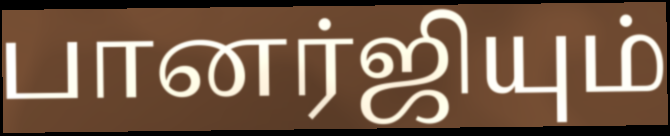
பானர்ஜியும்